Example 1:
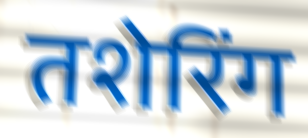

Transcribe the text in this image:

तशेरिंग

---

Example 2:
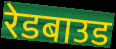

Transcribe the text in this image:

रेडबाउड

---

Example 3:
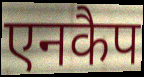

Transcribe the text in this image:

एनकैप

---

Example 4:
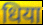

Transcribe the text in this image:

धिया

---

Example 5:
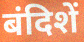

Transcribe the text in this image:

बंदिशें